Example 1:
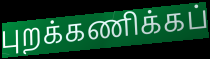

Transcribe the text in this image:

புறக்கணிக்கப்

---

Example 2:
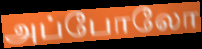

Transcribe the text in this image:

அப்போலோ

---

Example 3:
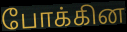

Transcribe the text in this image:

போக்கின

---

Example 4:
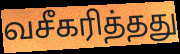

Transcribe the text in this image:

வசீகரித்தது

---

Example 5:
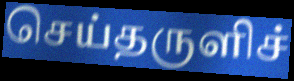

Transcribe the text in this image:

செய்தருளிச்